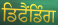
ਡਿਫੈਂਡਿੰਗ